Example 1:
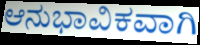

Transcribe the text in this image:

ಆನುಭಾವಿಕವಾಗಿ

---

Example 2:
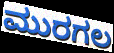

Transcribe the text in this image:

ಮುರಗಲ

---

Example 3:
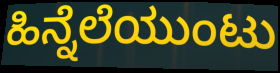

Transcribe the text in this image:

ಹಿನ್ನೆಲೆಯುಂಟು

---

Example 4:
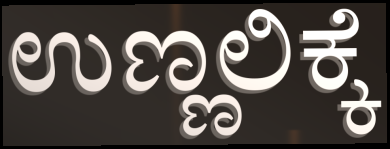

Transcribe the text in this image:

ಉಣ್ಣಲಿಕ್ಕೆ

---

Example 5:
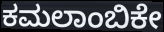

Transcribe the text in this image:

ಕಮಲಾಂಬಿಕೇ